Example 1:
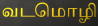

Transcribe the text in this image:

வடமொழி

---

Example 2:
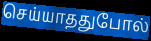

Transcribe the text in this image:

செய்யாததுபோல்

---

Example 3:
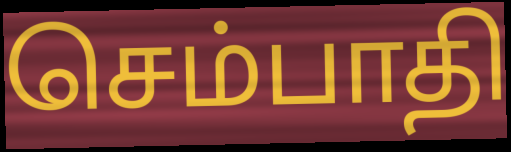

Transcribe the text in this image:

செம்பாதி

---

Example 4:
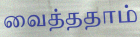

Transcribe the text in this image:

வைத்ததாம்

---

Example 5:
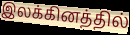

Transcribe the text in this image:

இலக்கினத்தில்